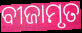
ବୀଜାମୃତ